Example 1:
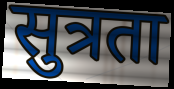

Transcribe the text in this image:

सुत्रता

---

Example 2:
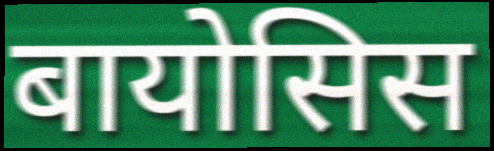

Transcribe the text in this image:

बायोसिस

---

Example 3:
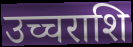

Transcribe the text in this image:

उच्चराशि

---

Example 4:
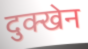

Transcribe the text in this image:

दुक्खेन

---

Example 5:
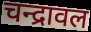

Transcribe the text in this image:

चन्द्रावल